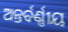
ଅନ୍ତର୍ବର୍ଣ୍ଣୀୟ